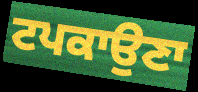
ਟਪਕਾਉਣਾ